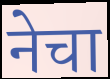
नेचा